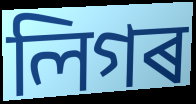
লিগৰ